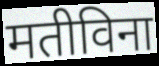
मतीविना